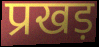
प्रखड़